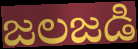
జలజడి